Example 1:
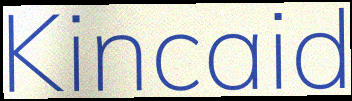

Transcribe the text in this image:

Kincaid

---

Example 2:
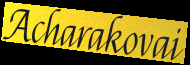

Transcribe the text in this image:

Acharakovai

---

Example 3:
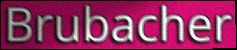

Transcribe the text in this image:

Brubacher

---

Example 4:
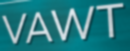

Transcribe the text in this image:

VAWT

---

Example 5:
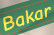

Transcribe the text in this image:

Bakar